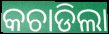
କଚାଡିଲା